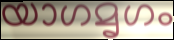
യാഗമൃഗം